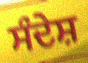
ਸੰਦੇਸ਼